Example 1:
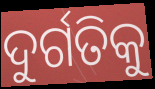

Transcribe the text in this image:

ଦୁର୍ଗତିକୁ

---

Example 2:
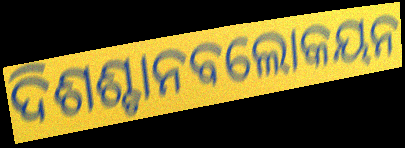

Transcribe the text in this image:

ଦିଶଶ୍ଚାନବଲୋକୟନ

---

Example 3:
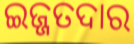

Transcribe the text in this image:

ଇଜ୍ଜତଦାର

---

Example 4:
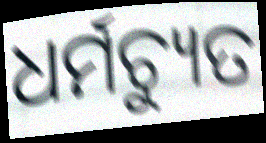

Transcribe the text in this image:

ଧର୍ମଚ୍ୟୁତ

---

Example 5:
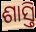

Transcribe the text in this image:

ଶାସ୍ତି